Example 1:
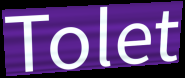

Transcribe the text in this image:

Tolet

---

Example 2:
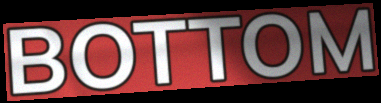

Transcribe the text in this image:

BOTTOM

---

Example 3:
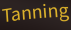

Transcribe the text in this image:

Tanning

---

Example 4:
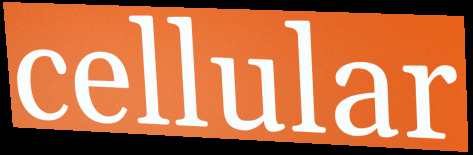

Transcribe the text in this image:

cellular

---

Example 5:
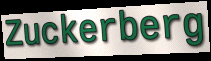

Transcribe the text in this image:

Zuckerberg